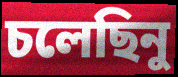
চলেছিনু